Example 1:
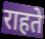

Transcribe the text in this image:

राहते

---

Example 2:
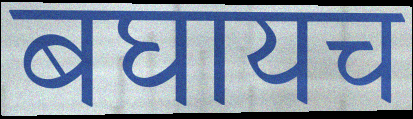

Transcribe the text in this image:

बघायच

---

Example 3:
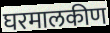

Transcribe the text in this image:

घरमालकीण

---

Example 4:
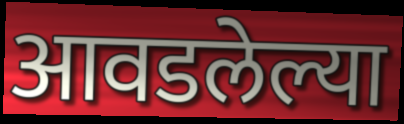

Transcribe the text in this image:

आवडलेल्या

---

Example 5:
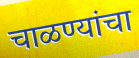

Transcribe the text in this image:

चाळण्यांचा